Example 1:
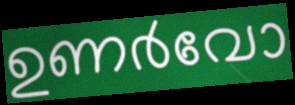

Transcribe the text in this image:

ഉണർവോ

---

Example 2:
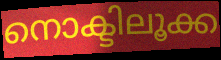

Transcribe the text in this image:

നൊക്ടിലൂക്ക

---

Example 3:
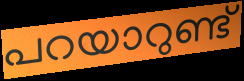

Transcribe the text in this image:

പറയാറുണ്ട്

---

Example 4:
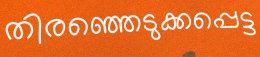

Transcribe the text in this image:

തിരഞ്ഞെടുക്കപ്പെട്ട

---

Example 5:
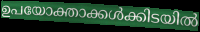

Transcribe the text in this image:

ഉപയോക്താക്കൾക്കിടയിൽ